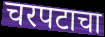
चरपटाचा